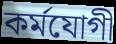
কর্মযোগী